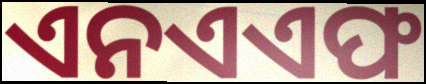
ଏନଏଏଫ